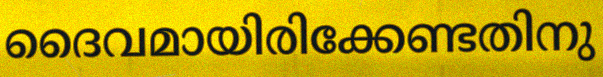
ദൈവമായിരിക്കേണ്ടതിനു